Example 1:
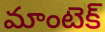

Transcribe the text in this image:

మాంటెక్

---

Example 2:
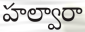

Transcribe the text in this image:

హల్వారా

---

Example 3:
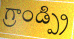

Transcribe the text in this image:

గ్రాండ్ప్రి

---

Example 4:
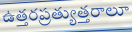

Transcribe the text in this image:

ఉత్తరప్రత్యుత్తరాలూ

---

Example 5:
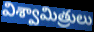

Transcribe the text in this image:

విశ్వామిత్రులు